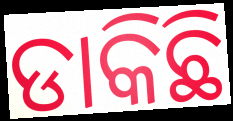
ଡାକିଛି